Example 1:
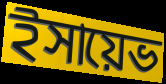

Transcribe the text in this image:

ইসায়েভ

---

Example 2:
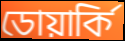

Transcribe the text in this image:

ডোয়ার্কি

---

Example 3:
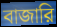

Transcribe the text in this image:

বাজারি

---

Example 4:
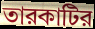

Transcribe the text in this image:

তারকাটির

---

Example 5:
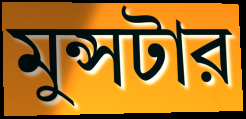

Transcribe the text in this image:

মুন্সটার